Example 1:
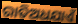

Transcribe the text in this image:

ରାତିଅଧଯାଏଁ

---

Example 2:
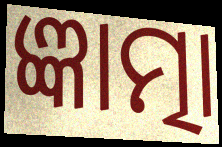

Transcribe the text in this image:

ଜ୍ଞାତ୍ମା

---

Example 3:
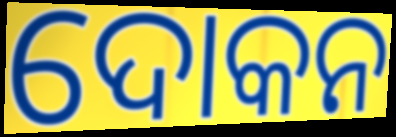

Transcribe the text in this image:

ଦୋକନ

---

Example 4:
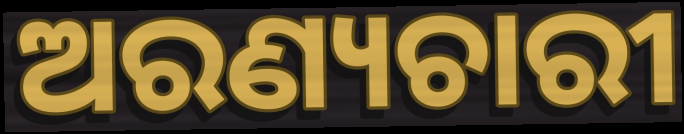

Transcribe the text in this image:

ଅରଣ୍ୟଚାରୀ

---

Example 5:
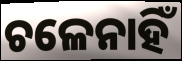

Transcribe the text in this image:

ଚଳେନାହିଁ